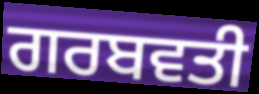
ਗਰਬਵਤੀ